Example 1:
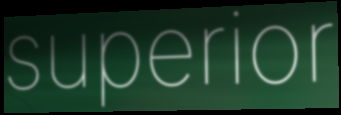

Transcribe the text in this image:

superior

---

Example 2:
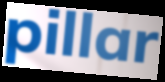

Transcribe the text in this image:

pillar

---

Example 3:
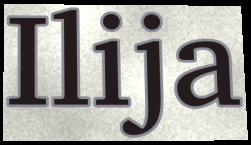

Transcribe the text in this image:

Ilija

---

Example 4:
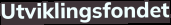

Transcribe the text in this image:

Utviklingsfondet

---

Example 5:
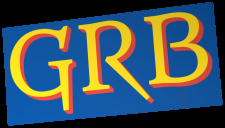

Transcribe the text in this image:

GRB